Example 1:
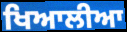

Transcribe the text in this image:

ਖਿਆਲੀਆ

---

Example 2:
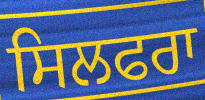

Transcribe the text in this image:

ਸਿਲਫਰਾ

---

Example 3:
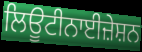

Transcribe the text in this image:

ਲਿਊਟੀਨਾਈਜ਼ੇਸ਼ਨ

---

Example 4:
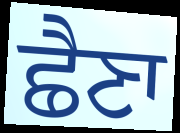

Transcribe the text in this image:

ਛੈਣਾ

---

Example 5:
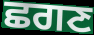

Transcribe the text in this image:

ਛਗਣ